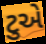
ટુએ